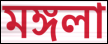
মঙ্গলা